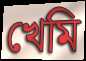
খেমি